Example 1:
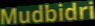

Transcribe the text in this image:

Mudbidri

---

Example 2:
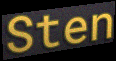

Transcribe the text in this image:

Sten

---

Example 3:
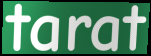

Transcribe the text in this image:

tarat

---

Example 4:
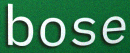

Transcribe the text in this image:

bose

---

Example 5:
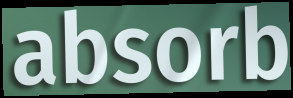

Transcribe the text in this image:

absorb